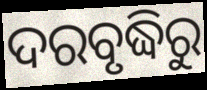
ଦରବୃଦ୍ଧିରୁ